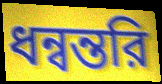
ধন্বন্তরি